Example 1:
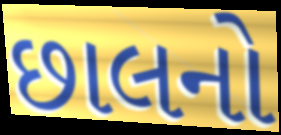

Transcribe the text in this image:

છાલનો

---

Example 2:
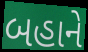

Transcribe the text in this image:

બહાને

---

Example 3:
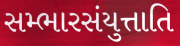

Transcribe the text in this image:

સમ્ભારસંયુત્તાતિ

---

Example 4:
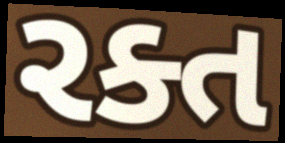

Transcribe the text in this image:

રક્ત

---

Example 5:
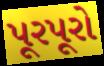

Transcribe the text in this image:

પૂરપૂરો